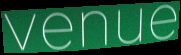
venue